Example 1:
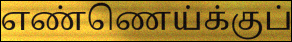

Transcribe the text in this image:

எண்ணெய்க்குப்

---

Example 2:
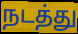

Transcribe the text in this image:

நடத்து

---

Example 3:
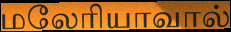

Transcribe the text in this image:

மலேரியாவால்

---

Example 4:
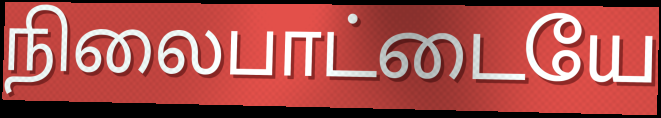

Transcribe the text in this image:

நிலைபாட்டையே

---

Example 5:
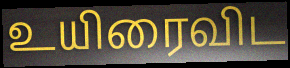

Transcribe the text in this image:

உயிரைவிட